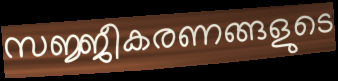
സജ്ജീകരണങ്ങളുടെ